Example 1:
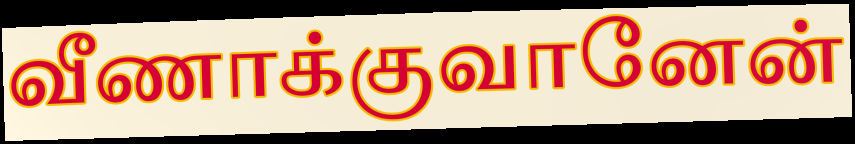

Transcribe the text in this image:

வீணாக்குவானேன்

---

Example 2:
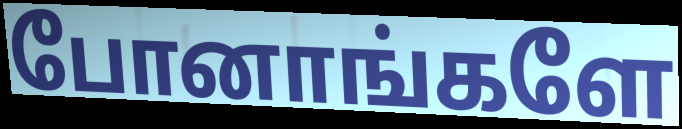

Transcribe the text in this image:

போனாங்களே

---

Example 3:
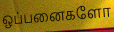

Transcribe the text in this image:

ஒப்பனைகளோ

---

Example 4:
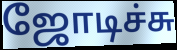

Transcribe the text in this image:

ஜோடிச்சு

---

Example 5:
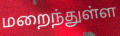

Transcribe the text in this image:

மறைந்துள்ள